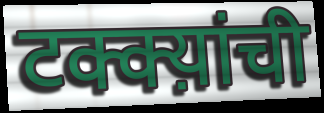
टक्क्य़ांची